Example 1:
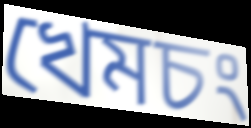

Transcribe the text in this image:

খেমচং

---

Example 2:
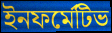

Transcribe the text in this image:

ইনফর্মেটিভ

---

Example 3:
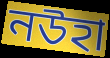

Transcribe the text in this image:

নউহা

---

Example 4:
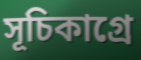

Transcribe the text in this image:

সূচিকাগ্রে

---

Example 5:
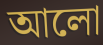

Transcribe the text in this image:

আলো